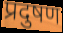
प्रदुषण